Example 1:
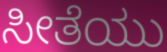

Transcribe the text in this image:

ಸೀತೆಯು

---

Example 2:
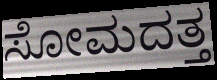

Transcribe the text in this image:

ಸೋಮದತ್ತ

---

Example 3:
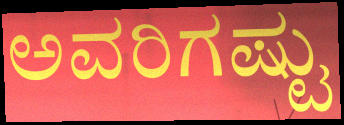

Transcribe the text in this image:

ಅವರಿಗಷ್ಟು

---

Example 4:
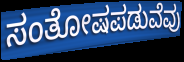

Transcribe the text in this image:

ಸಂತೋಷಪಡುವೆವು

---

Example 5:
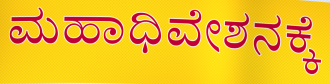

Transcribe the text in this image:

ಮಹಾಧಿವೇಶನಕ್ಕೆ